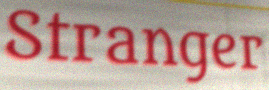
Stranger